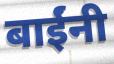
बाईंनी